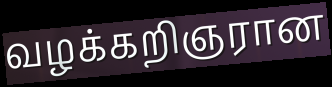
வழக்கறிஞரான